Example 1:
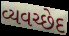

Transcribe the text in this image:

વ્યવચ્છેદ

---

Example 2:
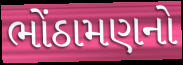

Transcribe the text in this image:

ભોંઠામણનો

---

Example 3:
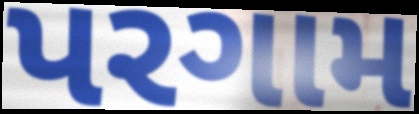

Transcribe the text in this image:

પરગામ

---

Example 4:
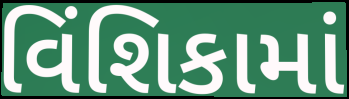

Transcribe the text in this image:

વિંશિકામાં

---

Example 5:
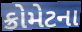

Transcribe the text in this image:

ક્રોમેટના